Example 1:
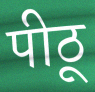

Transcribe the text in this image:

पीठू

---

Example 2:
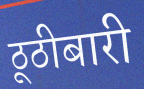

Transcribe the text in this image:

ठूठीबारी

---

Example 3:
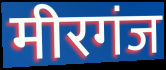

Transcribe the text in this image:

मीरगंज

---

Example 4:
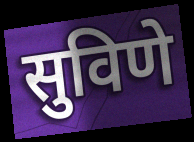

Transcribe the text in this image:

सुविणे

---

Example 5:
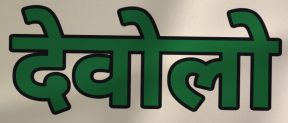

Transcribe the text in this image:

देवोलो